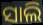
ସାଲି